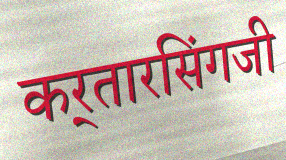
कर्तारसिंगजी